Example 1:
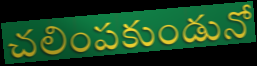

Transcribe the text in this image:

చలింపకుండునో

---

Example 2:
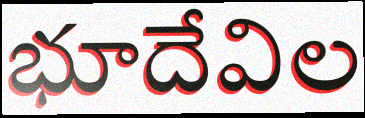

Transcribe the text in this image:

భూదేవిల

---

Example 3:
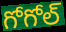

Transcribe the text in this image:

గోగోల్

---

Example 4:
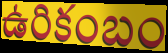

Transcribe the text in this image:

ఉరికంబం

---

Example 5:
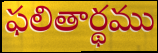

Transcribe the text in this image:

ఫలితార్థము